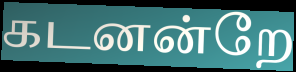
கடனன்றே